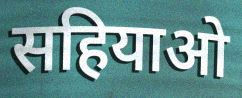
सहियाओ